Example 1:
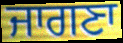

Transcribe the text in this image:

ਜਾਗਣਾ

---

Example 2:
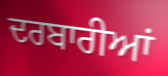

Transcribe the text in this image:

ਦਰਬਾਰੀਆਂ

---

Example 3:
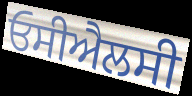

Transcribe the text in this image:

ਓਸੀਐਲਸੀ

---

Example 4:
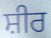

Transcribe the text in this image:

ਸ਼ੀਰ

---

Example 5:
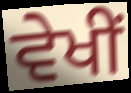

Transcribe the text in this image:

ਵੇਖੀਂ